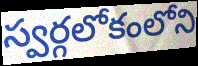
స్వర్గలోకంలోని